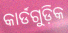
କାର୍ଡଗୁଡ଼ିକ